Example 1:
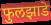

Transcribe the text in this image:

फुलझाडे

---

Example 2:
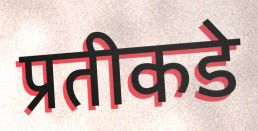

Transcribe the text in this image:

प्रतीकडे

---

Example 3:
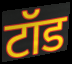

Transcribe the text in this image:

टॉड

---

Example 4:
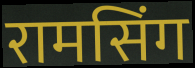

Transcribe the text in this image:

रामसिंग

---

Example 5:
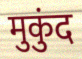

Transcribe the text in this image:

मुकुंद